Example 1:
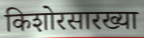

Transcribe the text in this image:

किशोरसारख्या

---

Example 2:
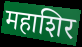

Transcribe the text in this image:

महाशिर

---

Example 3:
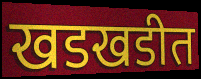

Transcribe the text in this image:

खडखडीत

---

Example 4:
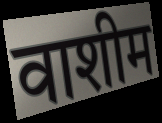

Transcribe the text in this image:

वाशीम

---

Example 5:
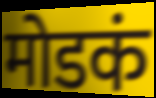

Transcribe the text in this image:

मोडकं